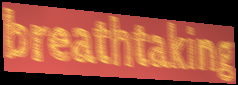
breathtaking